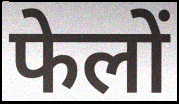
फेलों